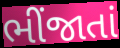
ભીંજાતાં